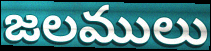
జలములు